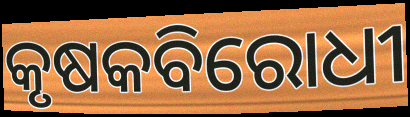
କୃଷକବିରୋଧୀ